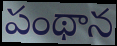
పంథాన